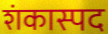
शंकास्पद